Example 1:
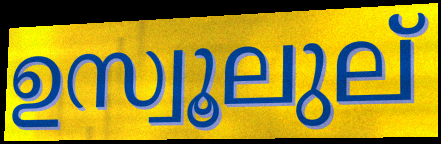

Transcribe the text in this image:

ഉസ്വൂലുല്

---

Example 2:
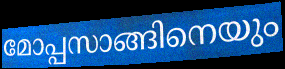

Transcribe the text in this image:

മോപ്പസാങ്ങിനെയും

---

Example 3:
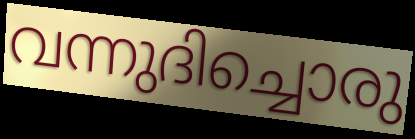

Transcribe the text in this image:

വന്നുദിച്ചൊരു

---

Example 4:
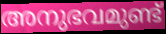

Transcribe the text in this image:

അനുഭവമുണ്ട്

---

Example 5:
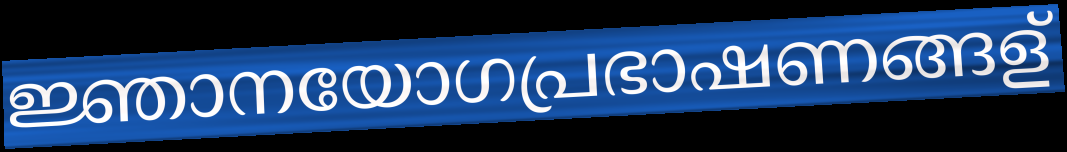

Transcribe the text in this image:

ജ്ഞാനയോഗപ്രഭാഷണങ്ങള്